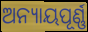
ଅନ୍ୟାୟପୂର୍ଣ୍ଣ